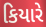
કિયારે